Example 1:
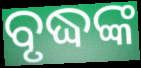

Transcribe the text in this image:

ବୃଦ୍ଧଙ୍କ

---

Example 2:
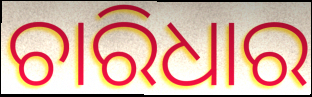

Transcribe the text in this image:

ଚାରିଧାର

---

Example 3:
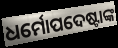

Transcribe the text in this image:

ଧର୍ମୋପଦେଷ୍ଟାଙ୍କ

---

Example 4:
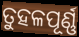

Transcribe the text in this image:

ତୁହଳପୂର୍ଣ୍ଣ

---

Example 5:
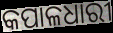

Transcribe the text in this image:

କପାଳଧାରୀ